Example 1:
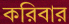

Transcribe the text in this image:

করিবার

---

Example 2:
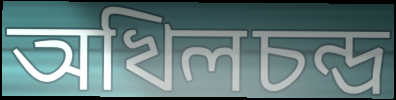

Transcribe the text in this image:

অখিলচন্দ্র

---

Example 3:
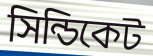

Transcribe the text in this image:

সিন্ডিকেট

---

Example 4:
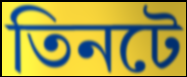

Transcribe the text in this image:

তিনটে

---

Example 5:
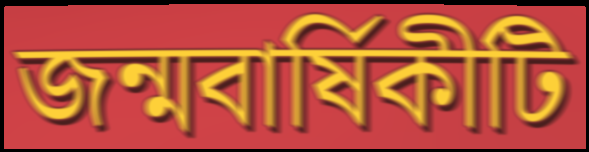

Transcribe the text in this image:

জন্মবার্ষিকীটি